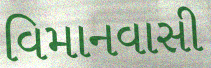
વિમાનવાસી